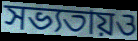
সভ্যতায়ও